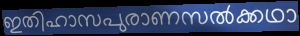
ഇതിഹാസപുരാണസൽക്കഥാ